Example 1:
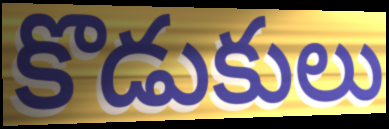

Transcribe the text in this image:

కొడుకులు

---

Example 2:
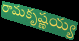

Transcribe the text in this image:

రామకృష్ణయ్య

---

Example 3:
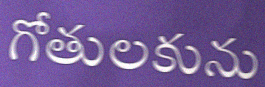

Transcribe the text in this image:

గోతులకును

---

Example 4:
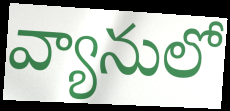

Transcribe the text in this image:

వ్యానులో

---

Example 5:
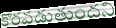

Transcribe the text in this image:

కొరవడుతుందని